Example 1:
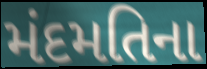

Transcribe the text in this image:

મંદમતિના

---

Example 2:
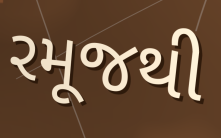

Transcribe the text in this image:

રમૂજથી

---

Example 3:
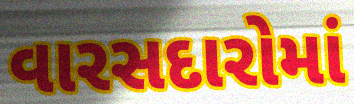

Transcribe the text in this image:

વારસદારોમાં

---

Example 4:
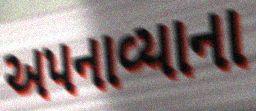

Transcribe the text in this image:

અપનાવ્યાના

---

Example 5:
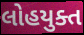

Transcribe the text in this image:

લોહયુક્ત